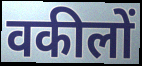
वकीलों